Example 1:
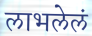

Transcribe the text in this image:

लाभलेलं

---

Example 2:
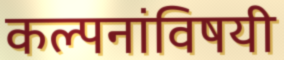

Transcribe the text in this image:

कल्पनांविषयी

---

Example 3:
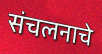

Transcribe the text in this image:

संचलनाचे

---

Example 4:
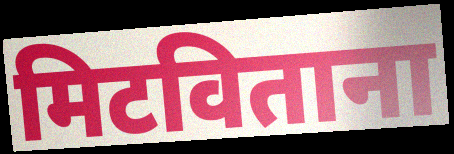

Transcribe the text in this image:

मिटविताना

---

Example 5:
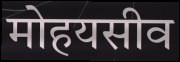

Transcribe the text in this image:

मोहयसीव